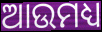
ଆଉମଧ୍ୟ